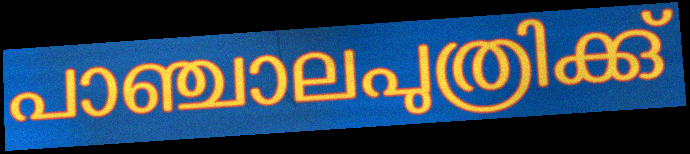
പാഞ്ചാലപുത്രിക്കു്